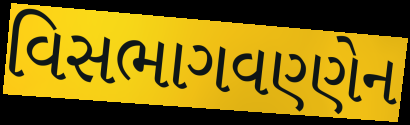
વિસભાગવણ્ણેન